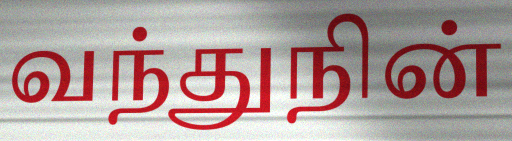
வந்துநின்